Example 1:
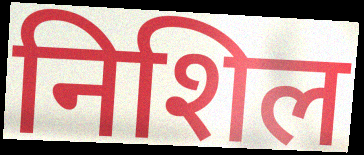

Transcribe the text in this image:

निशिल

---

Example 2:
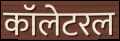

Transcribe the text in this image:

कॉलेटरल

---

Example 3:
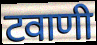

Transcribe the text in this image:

टवाणी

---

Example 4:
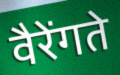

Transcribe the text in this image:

वैरेंगते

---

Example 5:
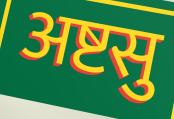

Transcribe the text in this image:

अष्टसु